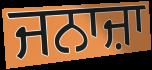
ਜਨਾਜ਼ਾ